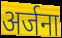
अर्जना